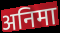
अनिमा